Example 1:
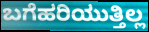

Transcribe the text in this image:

ಬಗೆಹರಿಯುತ್ತಿಲ್ಲ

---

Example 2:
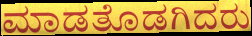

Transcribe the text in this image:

ಮಾಡತೊಡಗಿದರು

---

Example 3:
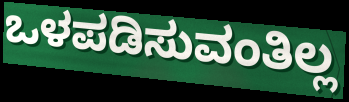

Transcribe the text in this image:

ಒಳಪಡಿಸುವಂತಿಲ್ಲ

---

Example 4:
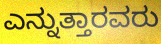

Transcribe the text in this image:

ಎನ್ನುತ್ತಾರವರು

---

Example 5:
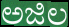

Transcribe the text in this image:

ಅಜಿಲ